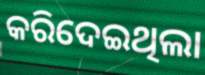
କରିଦେଇଥିଲା